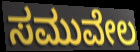
ಸಮುವೇಲ